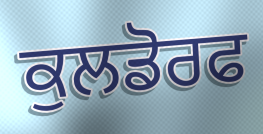
ਕੁਲਡੋਰਫ